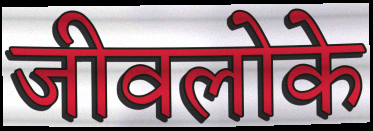
जीवलोके